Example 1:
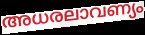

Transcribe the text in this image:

അധരലാവണ്യം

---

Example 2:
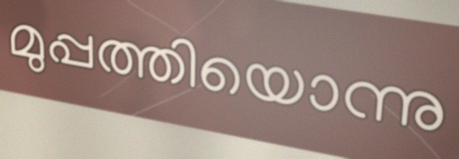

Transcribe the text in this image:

മുപ്പത്തിയൊന്നു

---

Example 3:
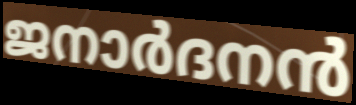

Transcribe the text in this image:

ജനാർദനൻ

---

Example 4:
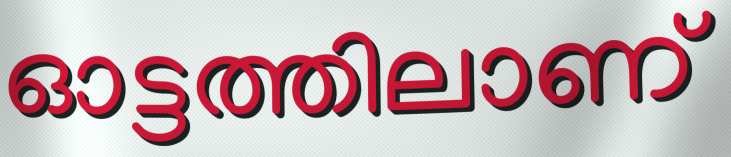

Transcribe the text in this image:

ഓട്ടത്തിലാണ്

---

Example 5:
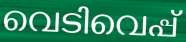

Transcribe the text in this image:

വെടിവെപ്പ്